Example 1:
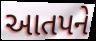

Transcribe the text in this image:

આતપને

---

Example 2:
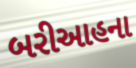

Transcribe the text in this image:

બરીઆહના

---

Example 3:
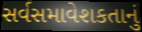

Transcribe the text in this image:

સર્વસમાવેશકતાનું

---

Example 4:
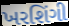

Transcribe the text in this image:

ખરશિંગી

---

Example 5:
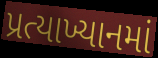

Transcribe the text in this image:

પ્રત્યાખ્યાનમાં